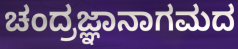
ಚಂದ್ರಜ್ಞಾನಾಗಮದ